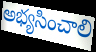
అభ్యసించాలి